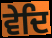
ਵੇਦਿ